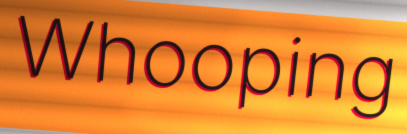
Whooping